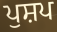
ਪੁਸ਼ਪ